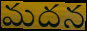
మదన